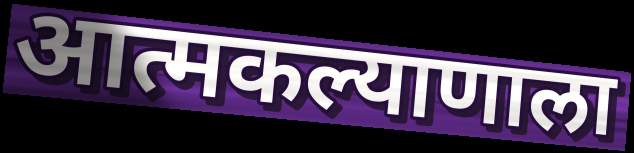
आत्मकल्याणाला